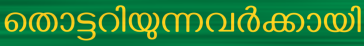
തൊട്ടറിയുന്നവർക്കായി